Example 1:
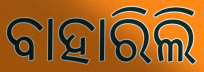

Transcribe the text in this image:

ବାହାରିଲି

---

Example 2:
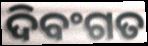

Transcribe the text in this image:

ଦିବଂଗତ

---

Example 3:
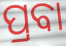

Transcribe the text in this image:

ପ୍ରବା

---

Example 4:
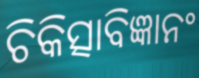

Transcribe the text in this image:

ଚିକିତ୍ସାବିଜ୍ଞାନଂ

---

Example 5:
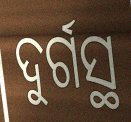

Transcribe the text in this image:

ଦୁର୍ଗସ୍ଥ